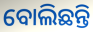
ବୋଲିଛନ୍ତି